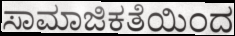
ಸಾಮಾಜಿಕತೆಯಿಂದ